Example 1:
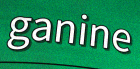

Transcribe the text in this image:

ganine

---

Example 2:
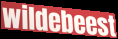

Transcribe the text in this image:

wildebeest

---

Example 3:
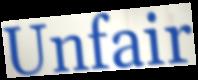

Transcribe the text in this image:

Unfair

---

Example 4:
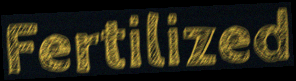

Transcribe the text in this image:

Fertilized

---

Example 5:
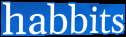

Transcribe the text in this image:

habbits